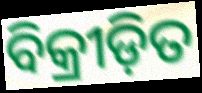
ବିକ୍ରୀଡ଼ିତ